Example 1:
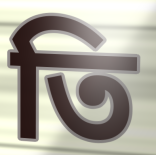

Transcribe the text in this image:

তি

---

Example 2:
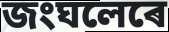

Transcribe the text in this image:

জংঘলেৰে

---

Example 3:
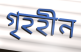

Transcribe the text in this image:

গৃহহীন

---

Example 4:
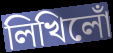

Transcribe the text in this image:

লিখিলোঁ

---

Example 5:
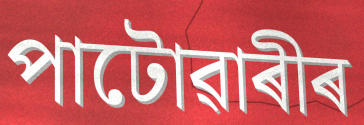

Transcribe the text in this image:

পাটোৱাৰীৰ